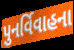
પુનર્વિવાહના